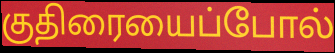
குதிரையைப்போல்